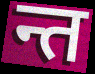
न्त